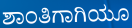
ಶಾಂತಿಗಾಗಿಯೂ